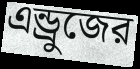
এন্ড্রুজের